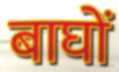
बाघों